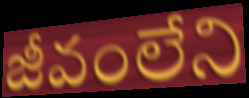
జీవంలేని